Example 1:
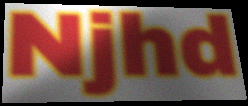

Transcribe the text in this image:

Njhd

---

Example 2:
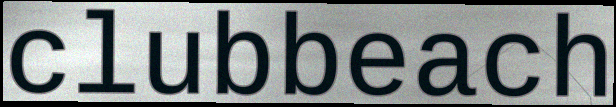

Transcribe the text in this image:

clubbeach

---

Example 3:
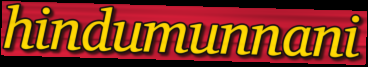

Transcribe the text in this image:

hindumunnani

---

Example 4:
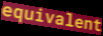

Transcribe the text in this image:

equivalent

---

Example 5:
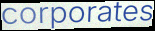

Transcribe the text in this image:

corporates